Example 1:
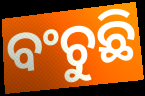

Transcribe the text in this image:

ବଂଚୁଛି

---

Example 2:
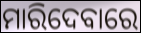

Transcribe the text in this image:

ମାରିଦେବାରେ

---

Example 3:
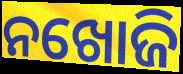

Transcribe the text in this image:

ନଖୋଜି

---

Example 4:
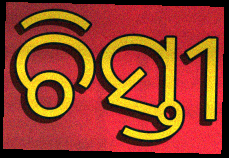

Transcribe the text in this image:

ଚିସ୍ତୀ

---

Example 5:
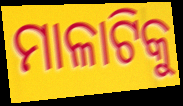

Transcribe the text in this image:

ମାଳାଟିକୁ